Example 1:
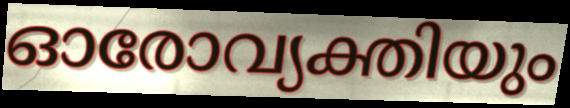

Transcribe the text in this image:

ഓരോവ്യക്തിയും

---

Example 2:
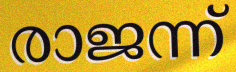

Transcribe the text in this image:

രാജന്ന്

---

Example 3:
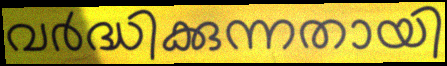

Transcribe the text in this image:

വർദ്ധിക്കുന്നതായി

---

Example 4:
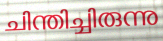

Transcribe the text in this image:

ചിന്തിച്ചിരുന്നു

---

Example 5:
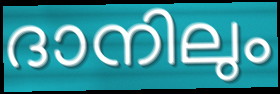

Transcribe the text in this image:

ദാനിലും